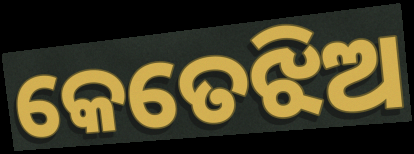
କେତେଝିଅ